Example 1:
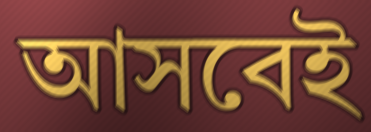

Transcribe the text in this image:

আসবেই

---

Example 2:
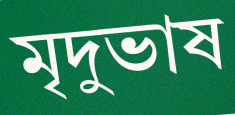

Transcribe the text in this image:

মৃদুভাষ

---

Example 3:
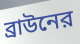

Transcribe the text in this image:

ব্রাউনের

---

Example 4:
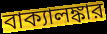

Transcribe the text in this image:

বাক্যালঙ্কার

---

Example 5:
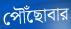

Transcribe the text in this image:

পৌঁছোবার